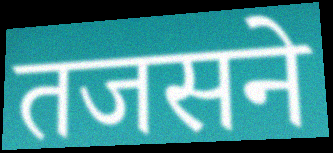
तजसने